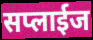
सप्लाईज